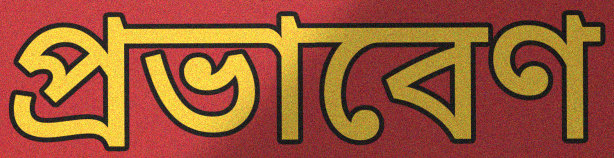
প্রভাবেণ